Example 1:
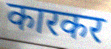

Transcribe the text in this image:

कारकर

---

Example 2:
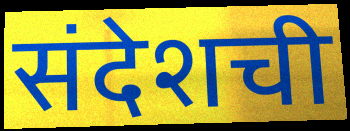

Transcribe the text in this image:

संदेशची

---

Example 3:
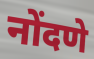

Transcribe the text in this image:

नोंदणे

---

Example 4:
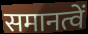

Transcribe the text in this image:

समानत्वें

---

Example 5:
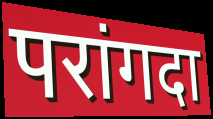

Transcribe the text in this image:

परांगदा